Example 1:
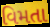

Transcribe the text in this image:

વિમતા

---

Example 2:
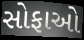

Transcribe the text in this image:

સોફાઓ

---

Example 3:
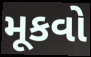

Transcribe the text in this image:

મૂકવો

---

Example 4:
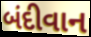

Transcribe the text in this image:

બંદીવાન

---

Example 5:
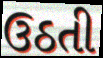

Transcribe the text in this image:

ઉઠતી